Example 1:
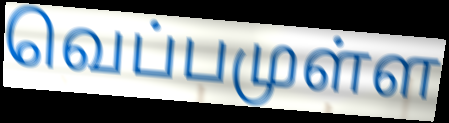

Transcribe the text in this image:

வெப்பமுள்ள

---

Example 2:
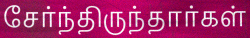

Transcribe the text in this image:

சேர்ந்திருந்தார்கள்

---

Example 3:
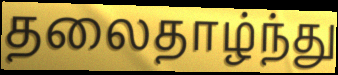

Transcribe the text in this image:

தலைதாழ்ந்து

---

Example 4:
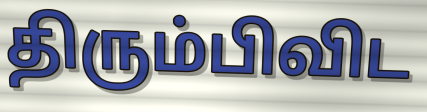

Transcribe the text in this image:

திரும்பிவிட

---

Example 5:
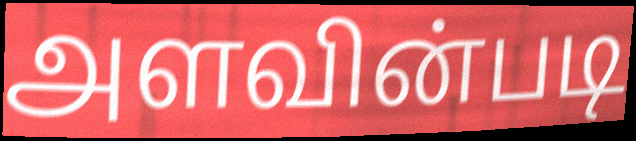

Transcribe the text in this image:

அளவின்படி